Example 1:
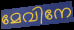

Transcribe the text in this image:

മേവിനേ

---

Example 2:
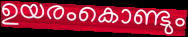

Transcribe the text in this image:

ഉയരംകൊണ്ടും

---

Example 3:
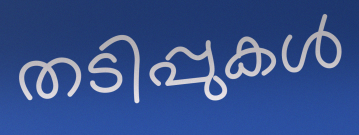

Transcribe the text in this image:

തടിപ്പുകൾ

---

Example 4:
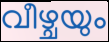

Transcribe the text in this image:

വീഴ്ചയും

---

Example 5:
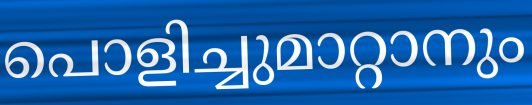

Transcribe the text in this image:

പൊളിച്ചുമാറ്റാനും